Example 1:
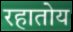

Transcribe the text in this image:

रहातोय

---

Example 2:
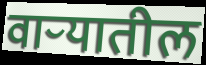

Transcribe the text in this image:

वाऱ्यातील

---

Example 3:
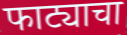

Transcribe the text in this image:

फाट्याचा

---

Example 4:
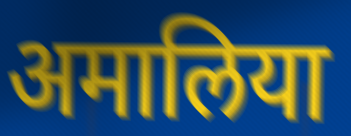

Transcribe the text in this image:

अमालिया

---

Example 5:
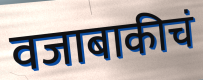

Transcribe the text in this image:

वजाबाकीचं